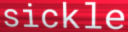
sickle